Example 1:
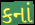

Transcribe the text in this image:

કનાં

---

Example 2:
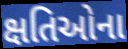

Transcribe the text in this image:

ક્ષતિઓના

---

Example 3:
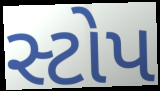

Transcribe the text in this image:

સ્ટોપ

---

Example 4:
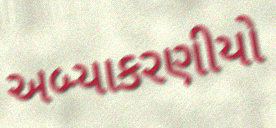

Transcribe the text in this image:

અબ્યાકરણીયો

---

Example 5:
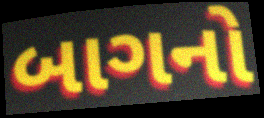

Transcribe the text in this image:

બાગનો